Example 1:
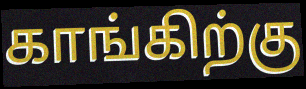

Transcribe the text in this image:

காங்கிற்கு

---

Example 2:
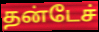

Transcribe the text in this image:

தன்டேச்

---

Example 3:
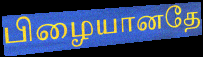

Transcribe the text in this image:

பிழையானதே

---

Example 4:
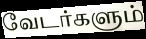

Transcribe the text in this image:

வேடர்களும்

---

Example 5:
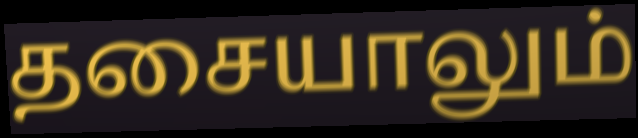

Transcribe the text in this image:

தசையாலும்